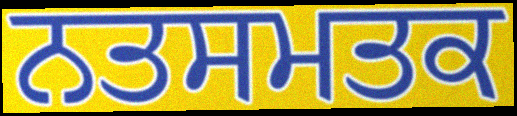
ਨਤਸਮਤਕ